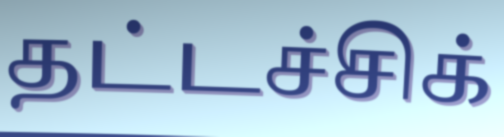
தட்டச்சிக்